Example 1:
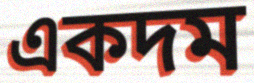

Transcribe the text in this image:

একদম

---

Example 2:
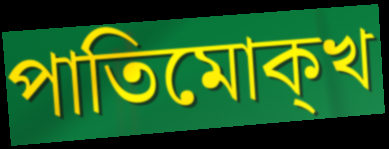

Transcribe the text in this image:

পাতিমোক্খ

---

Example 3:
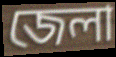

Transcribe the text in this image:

জেলা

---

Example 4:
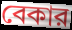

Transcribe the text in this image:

বেকার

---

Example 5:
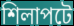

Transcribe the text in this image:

শিলাপটে